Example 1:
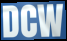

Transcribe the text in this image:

DCW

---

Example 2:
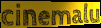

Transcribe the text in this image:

cinemalu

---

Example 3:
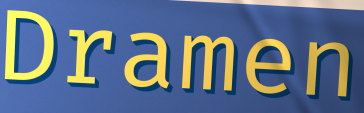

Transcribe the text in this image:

Dramen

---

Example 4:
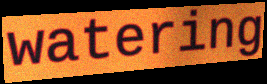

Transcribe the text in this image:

watering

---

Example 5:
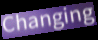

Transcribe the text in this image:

Changing